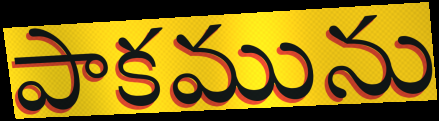
పాకమును